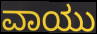
ವಾಯು